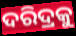
ଦରିଦ୍ରକୁ